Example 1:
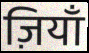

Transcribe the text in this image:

ज़ियाँ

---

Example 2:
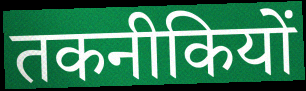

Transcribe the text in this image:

तकनीकियों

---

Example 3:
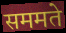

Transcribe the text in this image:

सममते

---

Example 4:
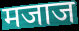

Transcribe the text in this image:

मजाज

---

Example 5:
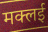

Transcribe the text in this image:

मक्लई